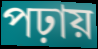
পঢ়ায়